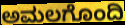
ಅಮಲಗೊಂದಿ